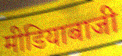
मीडियाबाजी